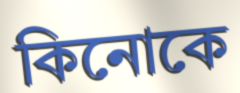
কিনোকে